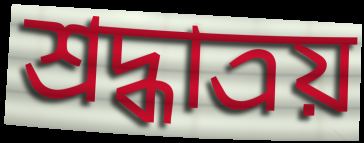
শ্রদ্ধাত্রয়